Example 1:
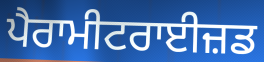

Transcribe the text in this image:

ਪੈਰਾਮੀਟਰਾਈਜ਼ਡ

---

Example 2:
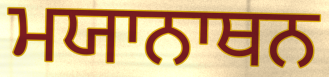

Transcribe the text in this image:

ਮਯਾਨਾਥਨ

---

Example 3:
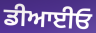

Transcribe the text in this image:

ਡੀਆਈਓ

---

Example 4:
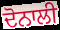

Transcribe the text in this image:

ਦੋਨਾਲੀ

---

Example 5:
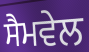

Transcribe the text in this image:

ਸੈਮਵੇਲ